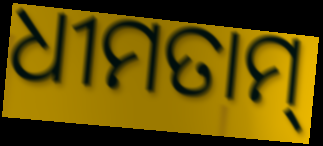
ଧୀମତାମ୍